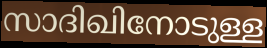
സാദിഖിനോടുള്ള